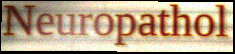
Neuropathol